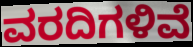
ವರದಿಗಳಿವೆ